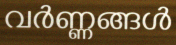
വർണ്ണങ്ങൾ